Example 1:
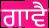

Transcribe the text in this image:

ਗਾਵੈ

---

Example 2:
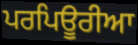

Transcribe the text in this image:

ਪਰਪਿਊਰੀਆ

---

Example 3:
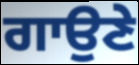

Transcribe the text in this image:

ਗਾਉਣੇ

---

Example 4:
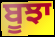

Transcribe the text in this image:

ਬੂਝਾ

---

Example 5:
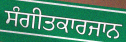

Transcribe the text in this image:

ਸੰਗੀਤਕਾਰਜਾਨ